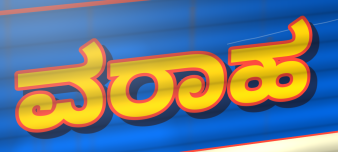
ವರಾಹ